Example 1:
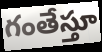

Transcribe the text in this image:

గంతేస్తూ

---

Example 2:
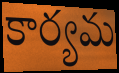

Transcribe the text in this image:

కార్యమ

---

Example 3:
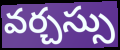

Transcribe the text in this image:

వర్చస్సు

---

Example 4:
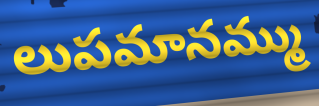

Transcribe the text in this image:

లుపమానమ్ము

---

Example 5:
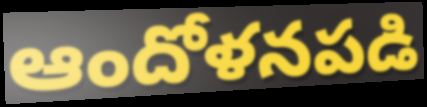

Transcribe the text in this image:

ఆందోళనపడి